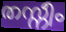
തസ്നീം